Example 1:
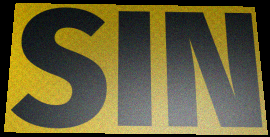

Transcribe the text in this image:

SIN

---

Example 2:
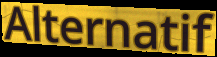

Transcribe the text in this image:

Alternatif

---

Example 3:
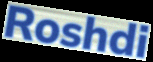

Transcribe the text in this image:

Roshdi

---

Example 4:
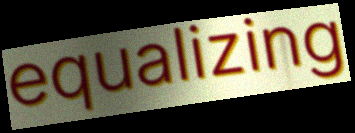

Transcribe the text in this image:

equalizing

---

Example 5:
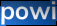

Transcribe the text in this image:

powi